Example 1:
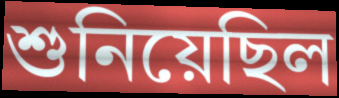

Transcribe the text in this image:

শুনিয়েছিল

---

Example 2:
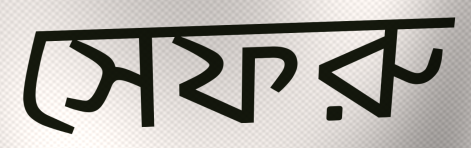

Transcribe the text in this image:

সেফরু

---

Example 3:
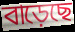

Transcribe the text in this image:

বাড়েছে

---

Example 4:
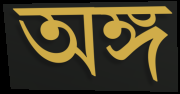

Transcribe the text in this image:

অঙ্গ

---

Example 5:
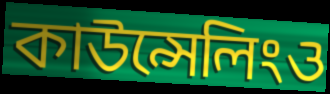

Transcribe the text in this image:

কাউন্সেলিংও